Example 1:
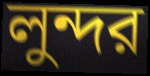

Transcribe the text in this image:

লুন্দর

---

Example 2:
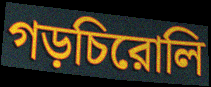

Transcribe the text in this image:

গড়চিরোলি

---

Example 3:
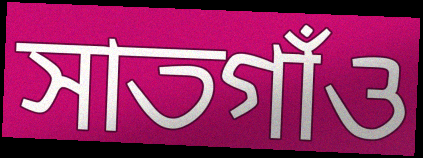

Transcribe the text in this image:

সাতগাঁও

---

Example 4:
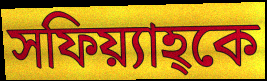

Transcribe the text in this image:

সফিয়্যাহ্কে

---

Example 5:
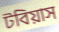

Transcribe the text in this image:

টবিয়াস